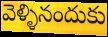
వెళ్ళినందుకు